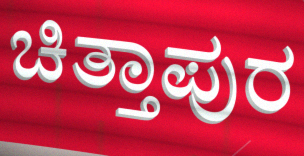
ಚಿತ್ತಾಪುರ